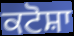
ਕਟੋਸ਼ਾ